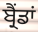
ਬ੍ਰੈਂਡਾਂ